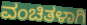
ವಂಚಿತಳಾಗಿ